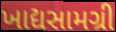
ખાદ્યસામગ્રી